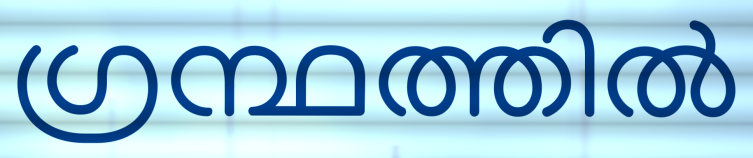
ഗ്രന്ഥത്തിൽ